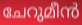
ചേറുമീൻ